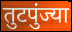
तुटपुंज्या